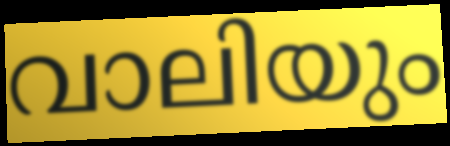
വാലിയും